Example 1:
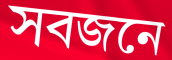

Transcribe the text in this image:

সবজনে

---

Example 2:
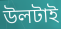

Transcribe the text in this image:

উলটাই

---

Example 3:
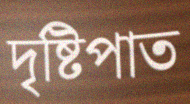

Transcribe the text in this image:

দৃষ্টিপাত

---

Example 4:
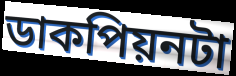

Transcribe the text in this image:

ডাকপিয়নটা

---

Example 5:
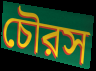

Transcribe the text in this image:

চৌরস